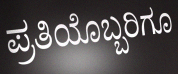
ಪ್ರತಿಯೊಬ್ಬರಿಗೂ